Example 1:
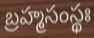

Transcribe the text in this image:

బ్రహ్మసంస్థః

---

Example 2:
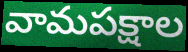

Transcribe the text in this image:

వామపక్షాల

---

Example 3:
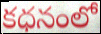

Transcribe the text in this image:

కధనంలో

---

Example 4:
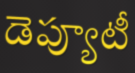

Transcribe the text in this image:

డెప్యూటీ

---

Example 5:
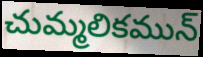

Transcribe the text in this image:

చుమ్మలికమున్